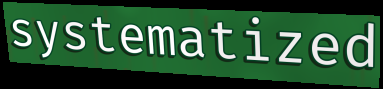
systematized